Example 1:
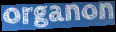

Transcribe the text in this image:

organon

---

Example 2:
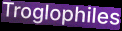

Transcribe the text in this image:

Troglophiles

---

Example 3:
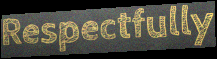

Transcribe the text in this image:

Respectfully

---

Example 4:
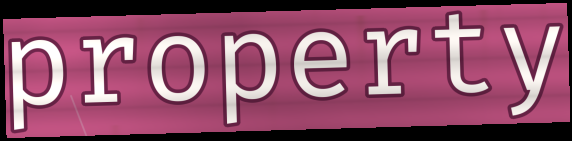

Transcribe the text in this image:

property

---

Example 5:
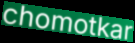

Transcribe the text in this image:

chomotkar